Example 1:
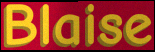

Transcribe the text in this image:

Blaise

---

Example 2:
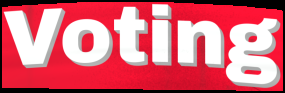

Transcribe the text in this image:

Voting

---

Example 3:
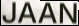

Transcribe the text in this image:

JAAN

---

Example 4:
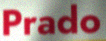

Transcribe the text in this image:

Prado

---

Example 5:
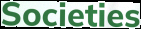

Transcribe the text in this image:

Societies